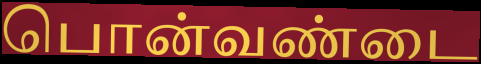
பொன்வண்டை